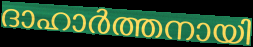
ദാഹാർത്തനായി